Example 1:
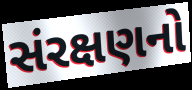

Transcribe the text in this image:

સંરક્ષણનો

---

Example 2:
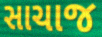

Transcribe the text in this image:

સાચાજ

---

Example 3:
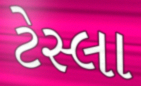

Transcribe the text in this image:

ટેસ્લા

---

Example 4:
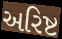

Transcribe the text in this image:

અરિષ્ટ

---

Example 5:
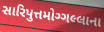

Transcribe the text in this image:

સારિપુત્તમોગ્ગલ્લાના